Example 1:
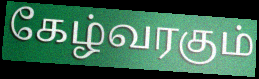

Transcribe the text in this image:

கேழ்வரகும்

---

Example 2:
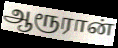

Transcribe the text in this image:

ஆரூரான்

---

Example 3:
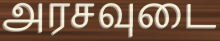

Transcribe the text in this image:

அரசவுடை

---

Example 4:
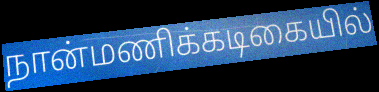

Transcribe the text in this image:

நான்மணிக்கடிகையில்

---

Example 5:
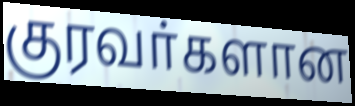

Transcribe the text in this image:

குரவர்களான